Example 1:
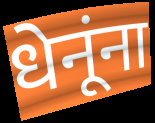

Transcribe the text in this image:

धेनूंना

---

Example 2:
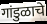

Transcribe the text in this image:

गांडुळाचे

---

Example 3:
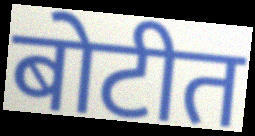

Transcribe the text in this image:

बोटीत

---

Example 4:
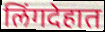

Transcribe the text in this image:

लिंगदेहात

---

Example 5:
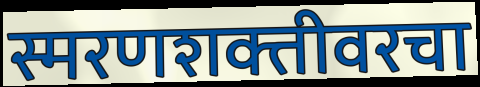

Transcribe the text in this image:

स्मरणशक्तीवरचा